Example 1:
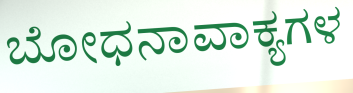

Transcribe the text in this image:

ಬೋಧನಾವಾಕ್ಯಗಳ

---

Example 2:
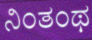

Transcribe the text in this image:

ನಿಂತಂಥ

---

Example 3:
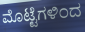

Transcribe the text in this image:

ಮೊಟ್ಟೆಗಳಿಂದ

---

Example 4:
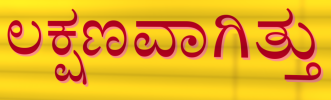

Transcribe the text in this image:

ಲಕ್ಷಣವಾಗಿತ್ತು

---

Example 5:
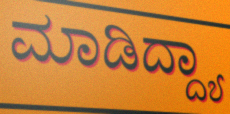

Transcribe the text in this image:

ಮಾಡಿದ್ದ್ಯಾ